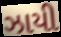
ઝાયી